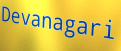
Devanagari